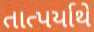
તાત્પર્યાથે